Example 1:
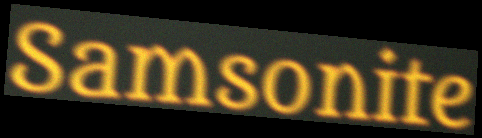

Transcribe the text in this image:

Samsonite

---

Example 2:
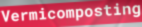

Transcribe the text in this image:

Vermicomposting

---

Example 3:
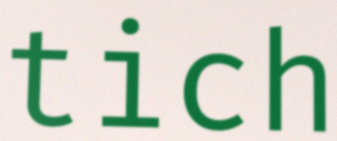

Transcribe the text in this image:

tich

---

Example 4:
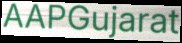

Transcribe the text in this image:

AAPGujarat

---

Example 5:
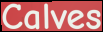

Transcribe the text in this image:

Calves